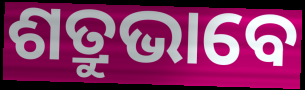
ଶତ୍ରୁଭାବେ